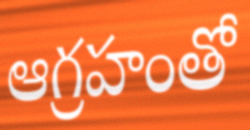
ఆగ్రహంతో